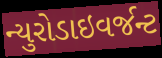
ન્યુરોડાઇવર્જન્ટ